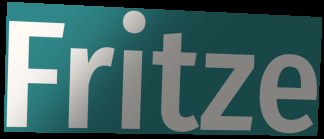
Fritze